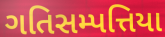
ગતિસમ્પત્તિયા